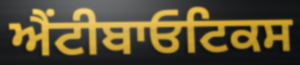
ਐਂਟੀਬਾਓਟਿਕਸ